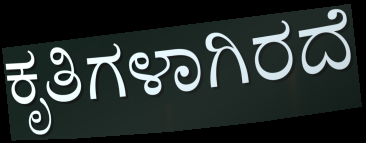
ಕೃತಿಗಳಾಗಿರದೆ